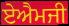
ਏਐਮਜੀ